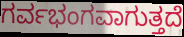
ಗರ್ವಭಂಗವಾಗುತ್ತದೆ